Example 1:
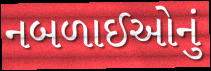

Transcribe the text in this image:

નબળાઈઓનું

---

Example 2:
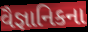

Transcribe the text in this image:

વૈજ્ઞાનિકના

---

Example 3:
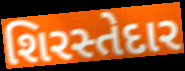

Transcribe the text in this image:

શિરસ્તેદાર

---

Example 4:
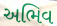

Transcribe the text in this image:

અભિવ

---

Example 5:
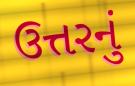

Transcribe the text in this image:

ઉત્તરનું